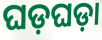
ଘଡ଼ଘଡ଼ା